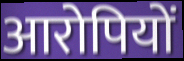
आरोपियों